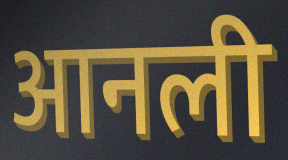
आनली